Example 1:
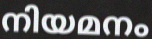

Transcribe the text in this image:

നിയമനം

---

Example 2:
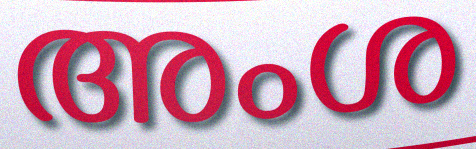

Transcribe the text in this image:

അംശ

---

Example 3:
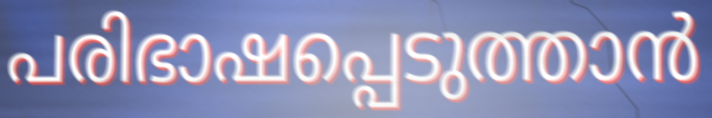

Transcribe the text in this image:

പരിഭാഷപ്പെടുത്താൻ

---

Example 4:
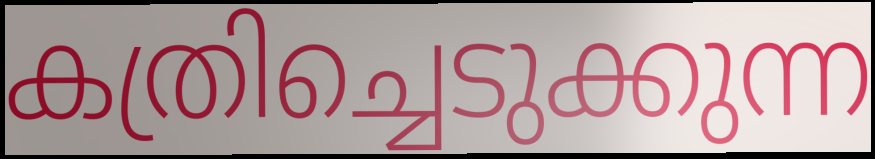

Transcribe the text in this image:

കത്രിച്ചെടുക്കുന്ന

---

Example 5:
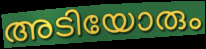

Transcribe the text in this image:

അടിയോരും